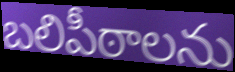
బలిపీఠాలను